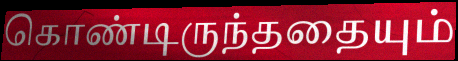
கொண்டிருந்ததையும்